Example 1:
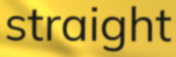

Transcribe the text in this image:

straight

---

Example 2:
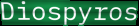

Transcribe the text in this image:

Diospyros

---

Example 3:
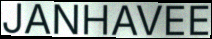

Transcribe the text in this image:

JANHAVEE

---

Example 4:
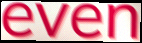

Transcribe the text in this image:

even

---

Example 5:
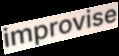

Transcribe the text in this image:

improvise